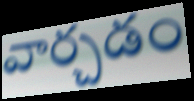
వార్చడం